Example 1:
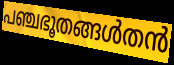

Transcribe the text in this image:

പഞ്ചഭൂതങ്ങൾതൻ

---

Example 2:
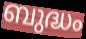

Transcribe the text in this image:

ബുദ്ധം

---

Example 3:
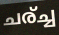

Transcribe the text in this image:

ചര്ച്ച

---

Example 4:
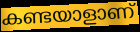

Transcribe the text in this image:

കണ്ടയാളാണ്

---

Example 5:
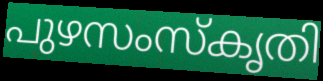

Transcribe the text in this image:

പുഴസംസ്കൃതി